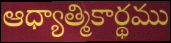
ఆధ్యాత్మికార్థము